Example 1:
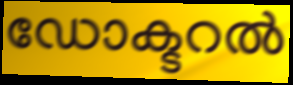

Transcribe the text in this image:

ഡോക്ടറൽ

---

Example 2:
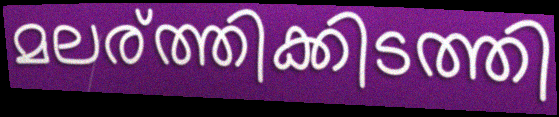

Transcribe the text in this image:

മലര്ത്തിക്കിടത്തി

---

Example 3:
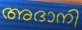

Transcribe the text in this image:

അദാനി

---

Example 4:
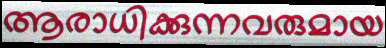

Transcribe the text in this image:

ആരാധിക്കുന്നവരുമായ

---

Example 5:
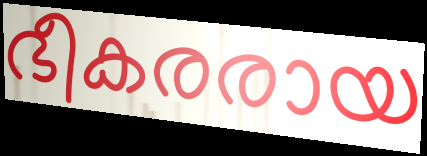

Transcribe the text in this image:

ഭീകരരായ